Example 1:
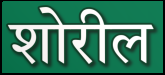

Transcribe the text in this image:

शोरील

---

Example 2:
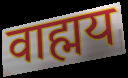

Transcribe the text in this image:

वाह्मय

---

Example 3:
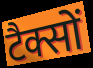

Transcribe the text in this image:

टैक्सों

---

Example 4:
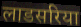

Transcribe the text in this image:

लाडसरिया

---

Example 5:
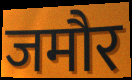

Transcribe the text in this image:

जमौर